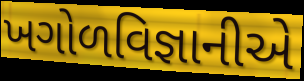
ખગોળવિજ્ઞાનીએ